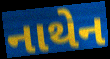
નાથેન